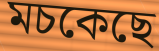
মচকেছে